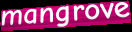
mangrove